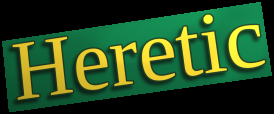
Heretic